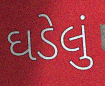
ઘડેલું